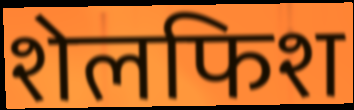
शेलफिश